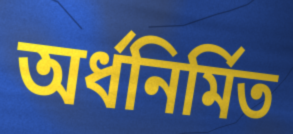
অর্ধনির্মিত